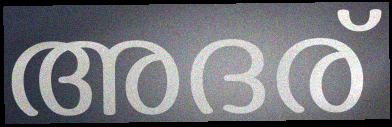
അദര്